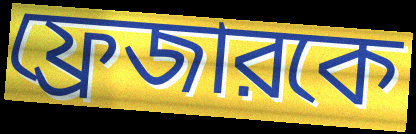
ফ্রেজারকে